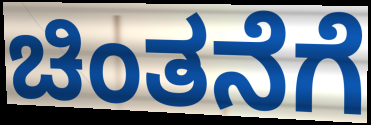
ಚಿಂತನೆಗೆ